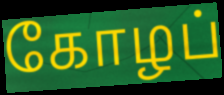
கோழப்